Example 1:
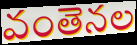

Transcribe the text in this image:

వంతెనల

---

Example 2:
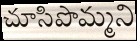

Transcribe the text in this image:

చూసిపొమ్మని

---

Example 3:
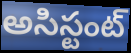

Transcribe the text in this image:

అసిస్టంట్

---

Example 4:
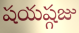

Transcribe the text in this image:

షయష్గజు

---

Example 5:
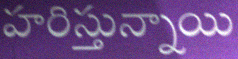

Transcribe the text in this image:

హరిస్తున్నాయి